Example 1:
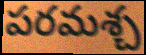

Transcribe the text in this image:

పరమశ్చ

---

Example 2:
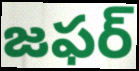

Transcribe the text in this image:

జఫర్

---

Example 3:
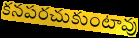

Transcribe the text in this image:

కనపరచుకుంటావు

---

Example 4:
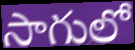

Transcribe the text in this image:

సాగులో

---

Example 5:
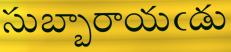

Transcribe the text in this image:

సుబ్బారాయఁడు